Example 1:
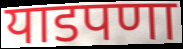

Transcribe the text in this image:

याडपणा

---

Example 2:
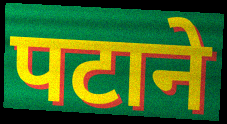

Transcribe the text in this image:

पटाने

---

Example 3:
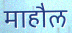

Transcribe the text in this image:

माहौल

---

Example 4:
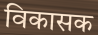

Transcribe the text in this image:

विकासक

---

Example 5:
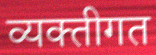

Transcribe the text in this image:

व्यक्तीगत